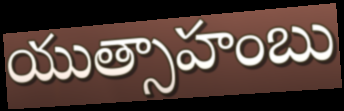
యుత్సాహంబు